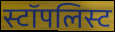
स्टॉपलिस्ट